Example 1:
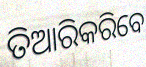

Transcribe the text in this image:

ତିଆରିକରିବେ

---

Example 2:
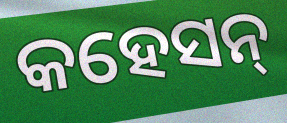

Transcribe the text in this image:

କହେସନ୍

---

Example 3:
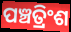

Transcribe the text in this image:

ପଞ୍ଚତ୍ରିଂଶ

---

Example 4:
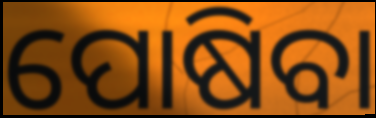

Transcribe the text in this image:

ପୋଷିବା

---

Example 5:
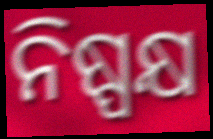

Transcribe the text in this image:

ନିଷ୍ପକ୍ଷ